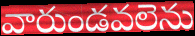
వారుండవలెను